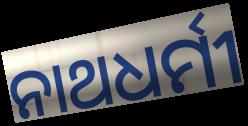
ନାଥଧର୍ମୀ